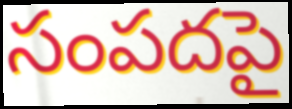
సంపదపై